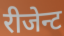
रीजेन्ट